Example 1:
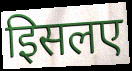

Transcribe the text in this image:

इिसलए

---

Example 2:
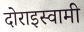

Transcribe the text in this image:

दोराइस्वामी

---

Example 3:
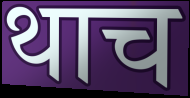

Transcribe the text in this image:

थाच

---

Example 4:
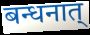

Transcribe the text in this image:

बन्धनात्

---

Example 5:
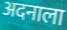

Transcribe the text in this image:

अदनाला